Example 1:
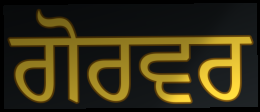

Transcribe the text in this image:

ਗੋਰਵਰ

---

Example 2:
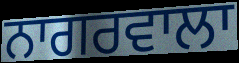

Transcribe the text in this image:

ਨਾਗਰਵਾਲਾ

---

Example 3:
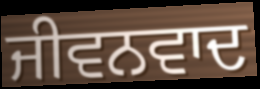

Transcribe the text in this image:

ਜੀਵਨਵਾਦ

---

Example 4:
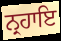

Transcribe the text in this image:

ਨ੍ਰਹਾਇ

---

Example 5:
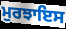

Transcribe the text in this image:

ਮੁਰਝਾਇਸ